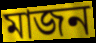
মাজন